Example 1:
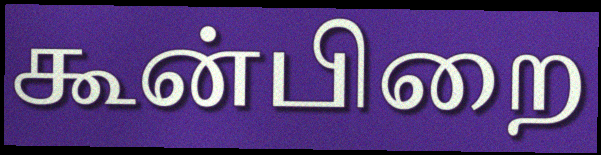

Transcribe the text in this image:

கூன்பிறை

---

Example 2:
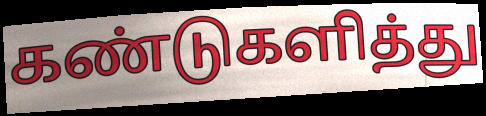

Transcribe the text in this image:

கண்டுகளித்து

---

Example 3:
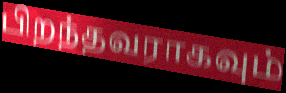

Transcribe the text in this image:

பிறந்தவராகவும்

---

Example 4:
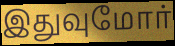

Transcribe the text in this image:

இதுவுமோர்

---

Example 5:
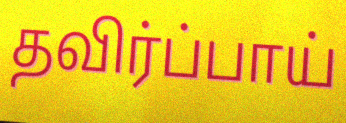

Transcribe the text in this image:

தவிர்ப்பாய்